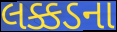
લક્કડના